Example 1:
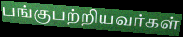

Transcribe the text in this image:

பங்குபற்றியவர்கள்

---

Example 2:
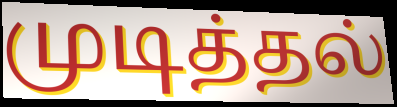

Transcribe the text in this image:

முடித்தல்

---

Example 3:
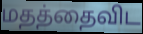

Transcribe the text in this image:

மதத்தைவிட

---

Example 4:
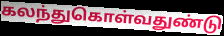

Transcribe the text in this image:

கலந்துகொள்வதுண்டு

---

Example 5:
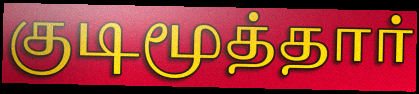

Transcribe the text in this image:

குடிமூத்தார்